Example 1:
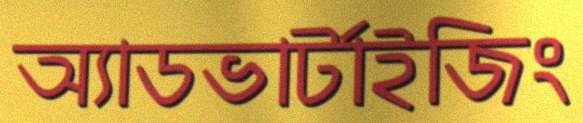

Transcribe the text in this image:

অ্যাডভার্টাইজিং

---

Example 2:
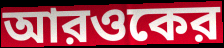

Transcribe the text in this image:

আরওকের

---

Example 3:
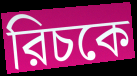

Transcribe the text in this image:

রিচকে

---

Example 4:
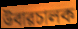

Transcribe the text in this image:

উবারচালক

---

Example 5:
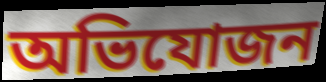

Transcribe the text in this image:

অভিযোজন